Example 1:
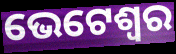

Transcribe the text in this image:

ଭେଟେଶ୍ୱର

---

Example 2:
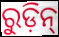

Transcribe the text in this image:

ରୁଡ଼ିନ୍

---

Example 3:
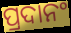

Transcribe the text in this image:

ପ୍ରଦାନଂ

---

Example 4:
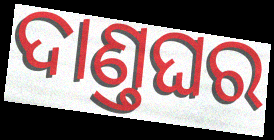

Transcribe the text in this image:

ଦାଣ୍ତଘର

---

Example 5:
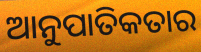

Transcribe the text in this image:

ଆନୁପାତିକତାର